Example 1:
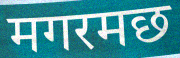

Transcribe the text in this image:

मगरमछ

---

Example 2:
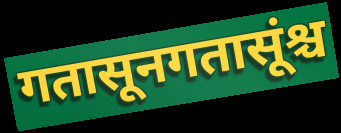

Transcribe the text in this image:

गतासूनगतासूंश्च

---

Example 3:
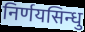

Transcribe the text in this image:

निर्णयसिन्धु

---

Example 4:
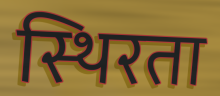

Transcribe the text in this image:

स्थिरता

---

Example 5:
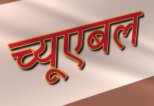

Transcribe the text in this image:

च्यूएबल